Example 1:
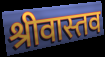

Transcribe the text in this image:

श्रीवास्‍तव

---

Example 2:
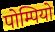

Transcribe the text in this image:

पोम्पियो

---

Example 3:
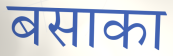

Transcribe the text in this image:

बसाका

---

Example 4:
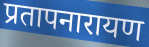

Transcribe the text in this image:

प्रतापनारायण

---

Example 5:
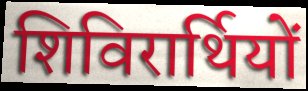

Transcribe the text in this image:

शिविरार्थियों